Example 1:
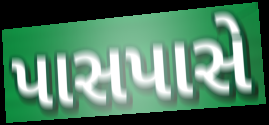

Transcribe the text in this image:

પાસપાસે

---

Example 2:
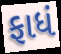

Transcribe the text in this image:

ફાધં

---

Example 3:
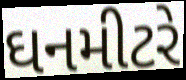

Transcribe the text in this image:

ઘનમીટરે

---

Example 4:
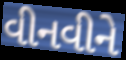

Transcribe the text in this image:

વીનવીને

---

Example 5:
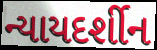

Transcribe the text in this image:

ન્યાયદર્શીન